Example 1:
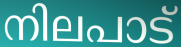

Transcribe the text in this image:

നിലപാട്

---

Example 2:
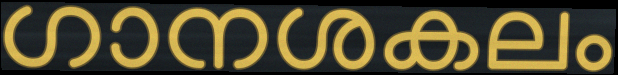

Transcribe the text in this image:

ഗാനശകലം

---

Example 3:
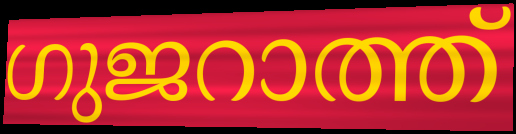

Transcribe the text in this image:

ഗുജറാത്ത്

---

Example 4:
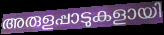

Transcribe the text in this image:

അരുളപ്പാടുകളായി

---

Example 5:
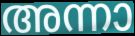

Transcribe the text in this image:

അന്നാ